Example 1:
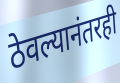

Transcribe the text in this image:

ठेवल्यानंतरही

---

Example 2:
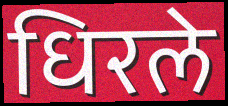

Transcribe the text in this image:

धिरले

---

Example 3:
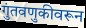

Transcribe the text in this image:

गुंतवणुकीवरून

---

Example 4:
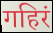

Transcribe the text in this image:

गहिरं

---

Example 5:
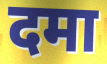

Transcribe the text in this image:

दमा